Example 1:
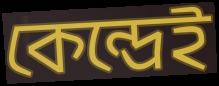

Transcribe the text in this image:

কেন্দ্রেই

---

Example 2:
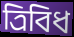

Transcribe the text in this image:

ত্রিবিধ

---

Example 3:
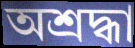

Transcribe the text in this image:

অশ্রদ্ধা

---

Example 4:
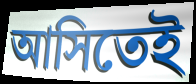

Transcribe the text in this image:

আসিতেই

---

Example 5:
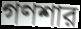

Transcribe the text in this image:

গণশার